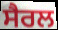
ਸੈਰਲ